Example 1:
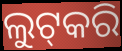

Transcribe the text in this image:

ଲୁଟ୍‌କରି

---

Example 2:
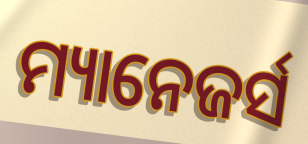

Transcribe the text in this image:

ମ୍ୟାନେଜର୍ସ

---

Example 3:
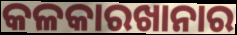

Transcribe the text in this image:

କଳକାରଖାନାର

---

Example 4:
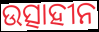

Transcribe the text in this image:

ଉତ୍ସାହୀନ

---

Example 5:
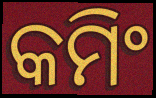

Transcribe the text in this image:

କମିଂ